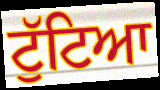
ਟੁੱਟਿਆ